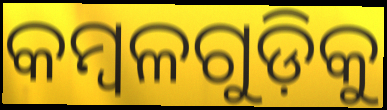
କମ୍ବଳଗୁଡ଼ିକୁ